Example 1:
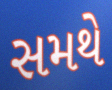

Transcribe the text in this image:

સમથે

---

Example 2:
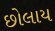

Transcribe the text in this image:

છોલાય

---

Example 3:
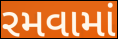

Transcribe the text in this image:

રમવામાં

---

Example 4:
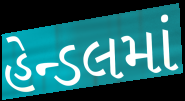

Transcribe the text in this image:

હેન્ડલમાં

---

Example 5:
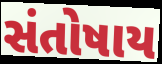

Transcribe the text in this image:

સંતોષાય